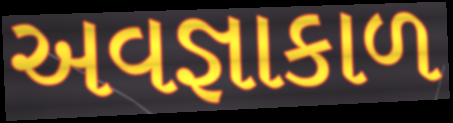
અવજ્ઞાકાળ